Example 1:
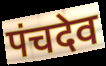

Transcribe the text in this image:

पंचदेव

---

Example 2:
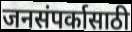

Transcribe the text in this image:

जनसंपर्कासाठी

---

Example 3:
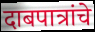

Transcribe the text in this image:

दाबपात्रांचे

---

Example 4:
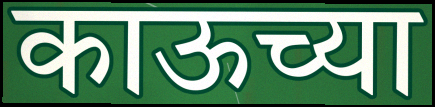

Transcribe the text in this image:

काऊच्या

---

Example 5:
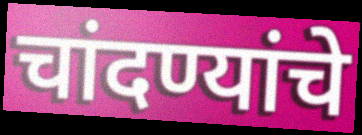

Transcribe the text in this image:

चांदण्यांचे